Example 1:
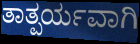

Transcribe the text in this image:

ತಾತ್ಪರ್ಯವಾಗಿ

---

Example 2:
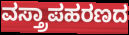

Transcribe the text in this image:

ವಸ್ತ್ರಾಪಹರಣದ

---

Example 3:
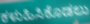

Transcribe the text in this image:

ಕಳುಹಿಸಿಕೊಡಲು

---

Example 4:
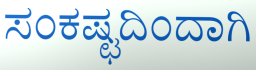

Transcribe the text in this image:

ಸಂಕಷ್ಟದಿಂದಾಗಿ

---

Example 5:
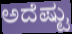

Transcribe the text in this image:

ಅದೆಷ್ಟು